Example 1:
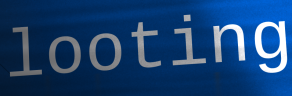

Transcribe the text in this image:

looting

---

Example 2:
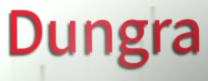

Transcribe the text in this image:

Dungra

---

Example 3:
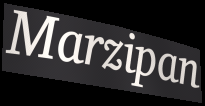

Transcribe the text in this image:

Marzipan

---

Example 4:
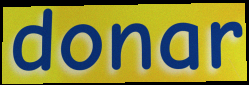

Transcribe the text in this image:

donar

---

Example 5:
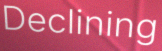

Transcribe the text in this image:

Declining